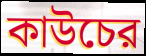
কাউচের